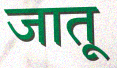
जातू